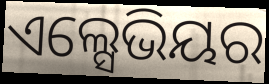
ଏଲ୍ସେଭିୟର